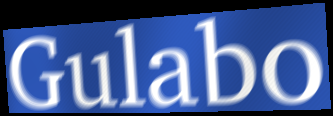
Gulabo